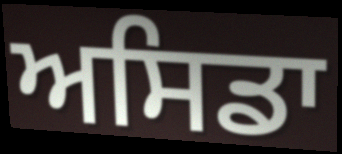
ਅਸਿਡਾ